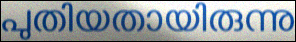
പുതിയതായിരുന്നു